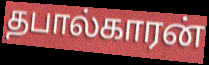
தபால்காரன்